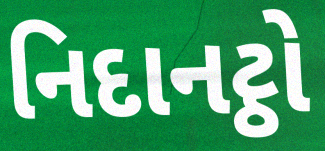
નિદાનટ્ઠો